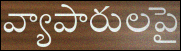
వ్యాపారులపై